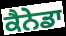
ਕੈਨੇਡਾ